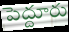
పెద్దూరు